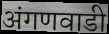
अंगणवाडी